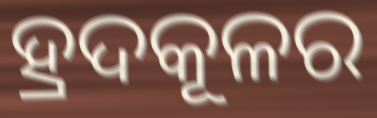
ହ୍ରଦକୂଳର